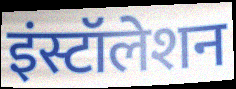
इंस्टॉलेशन